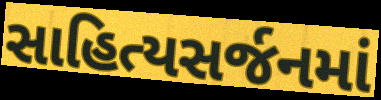
સાહિત્યસર્જનમાં